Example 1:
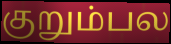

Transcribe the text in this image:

குறும்பல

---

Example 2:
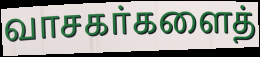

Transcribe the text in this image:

வாசகர்களைத்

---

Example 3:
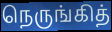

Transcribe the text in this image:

நெருங்கித்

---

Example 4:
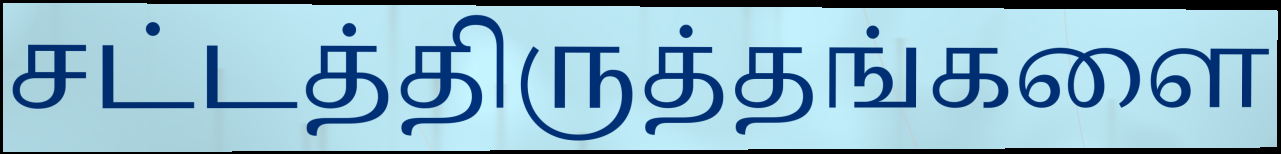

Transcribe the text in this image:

சட்டத்திருத்தங்களை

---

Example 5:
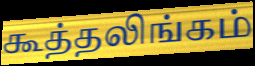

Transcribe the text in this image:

கூத்தலிங்கம்